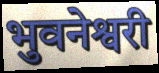
भुवनेश्वरी